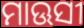
ମାଊସୀ